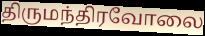
திருமந்திரவோலை